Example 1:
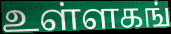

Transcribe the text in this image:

உள்ளகங்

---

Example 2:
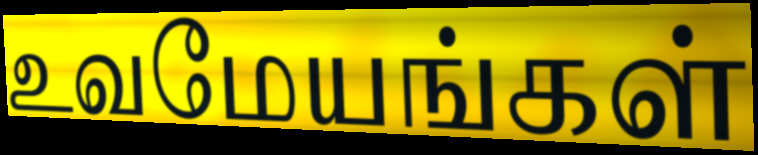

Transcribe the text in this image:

உவமேயங்கள்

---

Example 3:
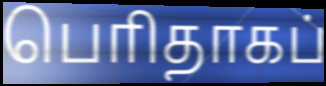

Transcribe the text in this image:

பெரிதாகப்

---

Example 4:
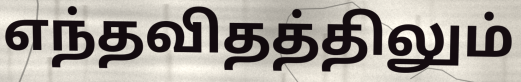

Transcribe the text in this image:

எந்தவிதத்திலும்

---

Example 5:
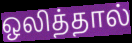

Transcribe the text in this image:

ஒலித்தால்